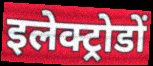
इलेक्ट्रोडों